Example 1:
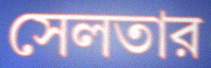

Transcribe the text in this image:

সেলতার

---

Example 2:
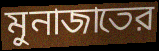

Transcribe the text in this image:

মুনাজাতের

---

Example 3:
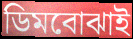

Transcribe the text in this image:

ডিমবোঝাই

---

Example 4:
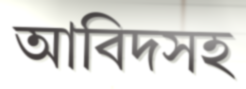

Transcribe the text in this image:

আবিদসহ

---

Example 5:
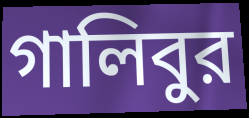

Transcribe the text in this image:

গালিবুর